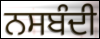
ਨਸਬੰਦੀ